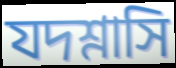
যদশ্নাসি